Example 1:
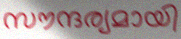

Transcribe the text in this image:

സൗന്ദര്യമായി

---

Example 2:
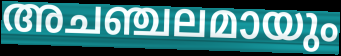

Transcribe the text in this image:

അചഞ്ചലമായും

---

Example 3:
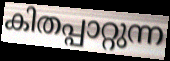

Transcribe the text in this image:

കിതപ്പാറ്റുന്ന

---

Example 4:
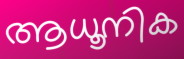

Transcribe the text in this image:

ആധൂനിക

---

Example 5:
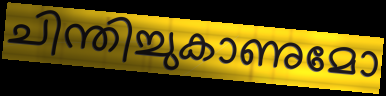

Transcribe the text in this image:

ചിന്തിച്ചുകാണുമോ